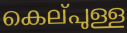
കെല്‌പുള്ള